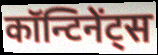
कॉन्टिनेंट्स